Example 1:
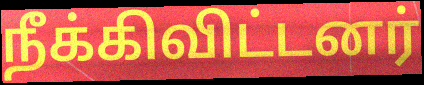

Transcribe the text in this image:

நீக்கிவிட்டனர்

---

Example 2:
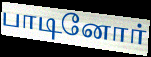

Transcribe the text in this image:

பாடினோர்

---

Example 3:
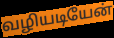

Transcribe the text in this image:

வழியடியேன்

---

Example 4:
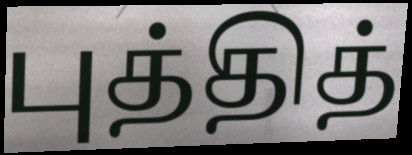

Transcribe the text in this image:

புத்தித்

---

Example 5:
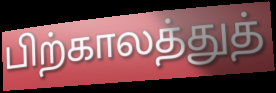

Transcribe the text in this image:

பிற்காலத்துத்